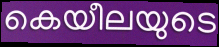
കെയീലയുടെ